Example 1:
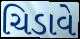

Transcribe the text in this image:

ચિડાવે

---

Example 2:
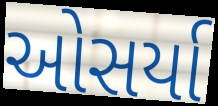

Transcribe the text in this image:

ઓસર્યા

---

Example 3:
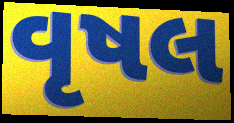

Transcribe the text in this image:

વૃષલ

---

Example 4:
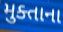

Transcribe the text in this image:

મુક્તાના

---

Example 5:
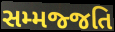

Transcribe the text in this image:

સમ્મજ્જતિ